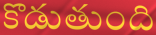
కొడుతుంది